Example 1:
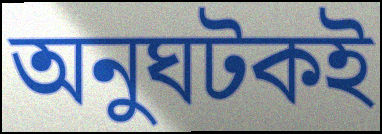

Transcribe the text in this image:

অনুঘটকই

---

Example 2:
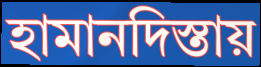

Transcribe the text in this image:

হামানদিস্তায়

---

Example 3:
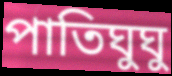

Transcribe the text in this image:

পাতিঘুঘু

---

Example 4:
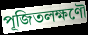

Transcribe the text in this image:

পূজিতলক্ষণৌ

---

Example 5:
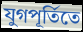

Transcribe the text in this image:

যুগপূর্তিতে